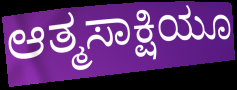
ಆತ್ಮಸಾಕ್ಷಿಯೂ